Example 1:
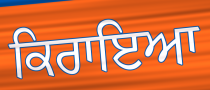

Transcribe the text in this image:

ਕਿਰਾਇਆ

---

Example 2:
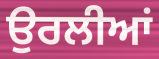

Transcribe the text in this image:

ਉਰਲੀਆਂ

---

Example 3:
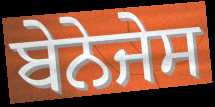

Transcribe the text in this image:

ਬੇਨੇਜੇਸ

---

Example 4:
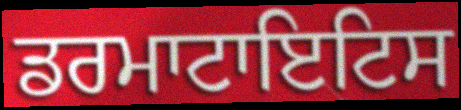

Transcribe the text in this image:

ਡਰਮਾਟਾਇਟਿਸ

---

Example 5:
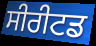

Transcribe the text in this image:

ਸੀਰੀਟਡ